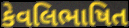
કેવલિભાષિત